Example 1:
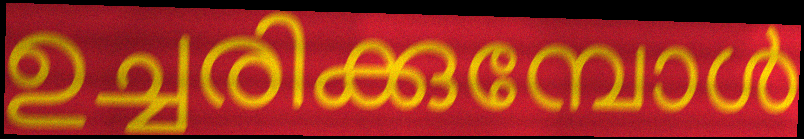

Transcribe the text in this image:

ഉച്ചരിക്കുമ്പോൾ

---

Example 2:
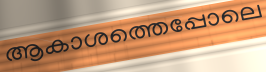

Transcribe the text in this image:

ആകാശത്തെപ്പോലെ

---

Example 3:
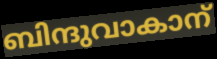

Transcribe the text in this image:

ബിന്ദുവാകാന്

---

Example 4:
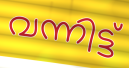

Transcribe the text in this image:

വന്നിട്ട്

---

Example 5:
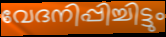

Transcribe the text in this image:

വേദനിപ്പിച്ചിട്ടും